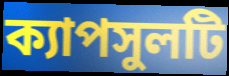
ক্যাপসুলটি